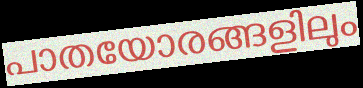
പാതയോരങ്ങളിലും